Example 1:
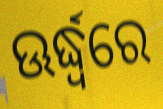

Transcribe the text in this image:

ଊର୍ଦ୍ଧ୍ୱରେ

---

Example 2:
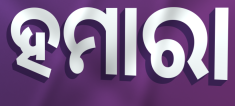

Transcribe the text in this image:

ହମାରା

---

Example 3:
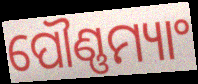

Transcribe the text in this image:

ପୌଣ୍ଣମ୍ୟାଂ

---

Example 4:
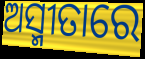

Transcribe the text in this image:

ଅସ୍ମୀତାରେ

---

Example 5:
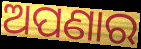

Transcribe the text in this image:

ଅପଣାର